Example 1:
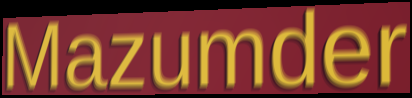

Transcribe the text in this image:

Mazumder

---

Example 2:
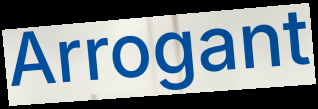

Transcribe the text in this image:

Arrogant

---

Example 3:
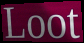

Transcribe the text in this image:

Loot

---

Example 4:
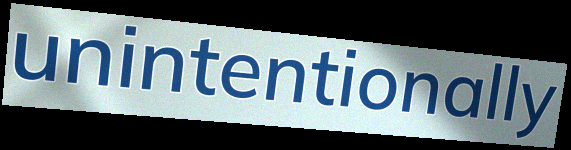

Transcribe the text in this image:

unintentionally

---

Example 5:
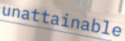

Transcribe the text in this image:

unattainable